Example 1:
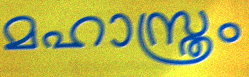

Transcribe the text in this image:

മഹാസ്ത്രം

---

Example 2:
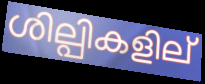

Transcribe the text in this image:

ശില്പികളില്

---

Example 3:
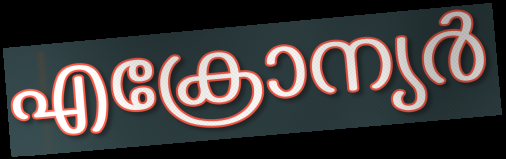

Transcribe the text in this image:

എക്രോന്യർ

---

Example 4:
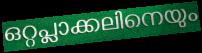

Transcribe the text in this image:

ഒറ്റപ്ലാക്കലിനെയും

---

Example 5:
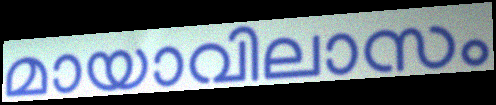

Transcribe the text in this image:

മായാവിലാസം